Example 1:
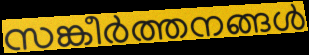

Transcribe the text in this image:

സങ്കീർത്തനങ്ങൾ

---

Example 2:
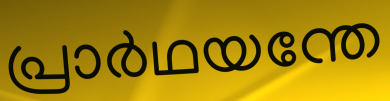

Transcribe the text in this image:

പ്രാർഥയന്തേ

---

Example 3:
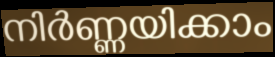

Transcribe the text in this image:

നിർണ്ണയിക്കാം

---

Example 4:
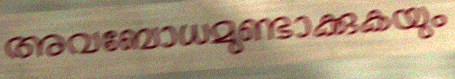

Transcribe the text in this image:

അവബോധമുണ്ടാക്കുകയും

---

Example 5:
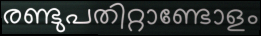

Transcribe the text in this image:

രണ്ടുപതിറ്റാണ്ടോളം